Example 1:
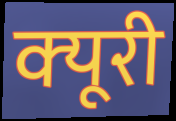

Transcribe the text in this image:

क्यूरी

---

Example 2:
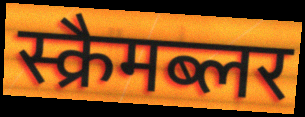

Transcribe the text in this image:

स्क्रैमब्लर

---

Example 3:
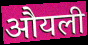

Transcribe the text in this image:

औयली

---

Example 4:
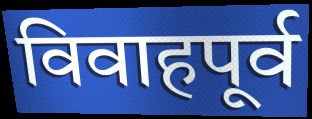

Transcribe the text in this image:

विवाहपूर्व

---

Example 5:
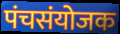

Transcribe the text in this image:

पंचसंयोजक